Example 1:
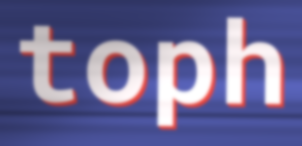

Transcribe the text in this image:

toph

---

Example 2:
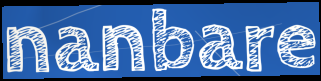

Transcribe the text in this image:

nanbare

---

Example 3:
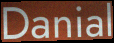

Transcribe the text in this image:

Danial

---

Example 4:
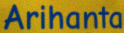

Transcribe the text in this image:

Arihanta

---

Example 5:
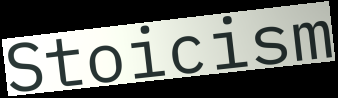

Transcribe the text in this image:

Stoicism